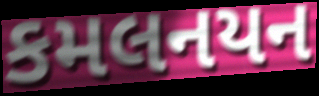
કમલનયન